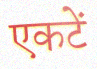
एकटें